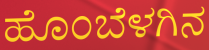
ಹೊಂಬೆಳಗಿನ